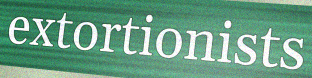
extortionists